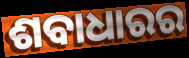
ଶବାଧାରର